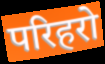
परिहरो